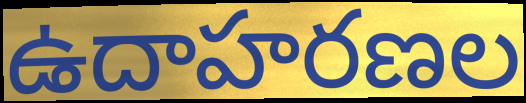
ఉదాహరణల